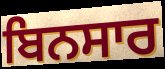
ਬਿਨਸਾਰ